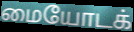
மையோடக்